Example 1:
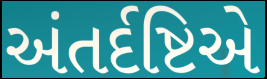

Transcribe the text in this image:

અંતર્દષ્ટિએ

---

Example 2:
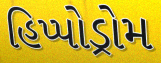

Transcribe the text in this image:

હિપ્પોડ્રોમ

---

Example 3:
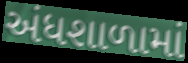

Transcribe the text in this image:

અંધશાળામાં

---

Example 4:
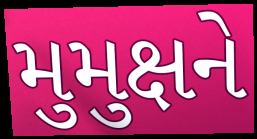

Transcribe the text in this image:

મુમુક્ષને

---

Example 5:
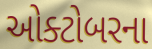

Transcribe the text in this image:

ઓક્ટોબરના